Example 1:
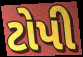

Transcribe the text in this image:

ટોપી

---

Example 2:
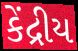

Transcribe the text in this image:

કેંદ્રીય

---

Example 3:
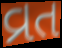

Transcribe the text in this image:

વ્રત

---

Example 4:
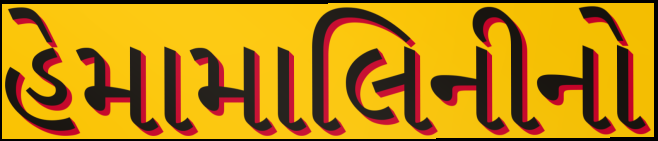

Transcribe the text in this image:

હેમામાલિનીનો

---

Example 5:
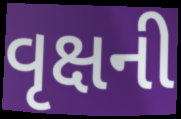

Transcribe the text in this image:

વૃક્ષની